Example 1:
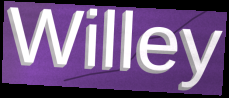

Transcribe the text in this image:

Willey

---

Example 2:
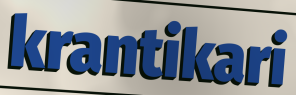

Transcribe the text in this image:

krantikari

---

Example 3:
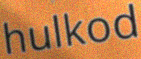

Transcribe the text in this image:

hulkod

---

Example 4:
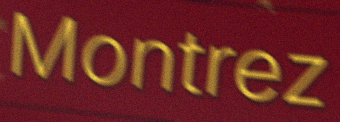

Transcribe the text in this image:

Montrez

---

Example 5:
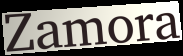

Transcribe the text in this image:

Zamora